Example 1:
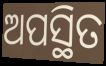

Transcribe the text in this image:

ଅପସ୍ଥିତ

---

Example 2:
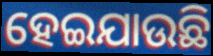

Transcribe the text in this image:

ହେଇଯାଉଛି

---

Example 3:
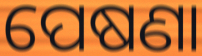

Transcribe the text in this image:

ପେଷଣା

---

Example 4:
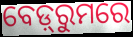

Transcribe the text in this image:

ବେଡ଼୍‌ରୁମରେ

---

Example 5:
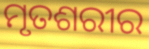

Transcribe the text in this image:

ମୃତଶରୀର